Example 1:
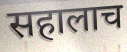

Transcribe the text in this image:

सहालाच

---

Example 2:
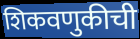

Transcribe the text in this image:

शिकवणुकीची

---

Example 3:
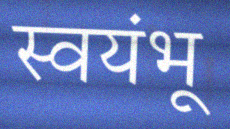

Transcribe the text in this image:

स्वयंभू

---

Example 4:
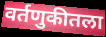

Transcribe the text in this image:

वर्तणुकीतला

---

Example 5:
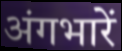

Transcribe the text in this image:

अंगभारें